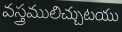
వస్త్రములిచ్చుటయు